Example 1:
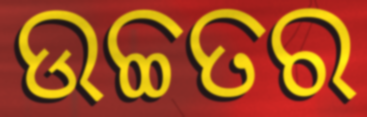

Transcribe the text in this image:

ଉଚ୍ଚତର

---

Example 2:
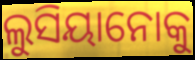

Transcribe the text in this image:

ଲୁସିୟାନୋକୁ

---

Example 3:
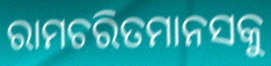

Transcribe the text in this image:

ରାମଚରିତମାନସକୁ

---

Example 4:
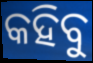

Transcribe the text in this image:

କହିବୁ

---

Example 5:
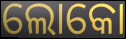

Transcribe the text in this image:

ଲୋକୋ